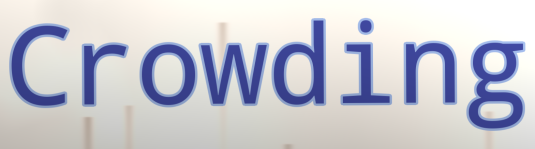
Crowding